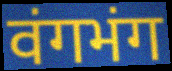
वंगभंग